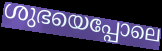
ശുഭയെപ്പോലെ